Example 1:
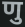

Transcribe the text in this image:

णु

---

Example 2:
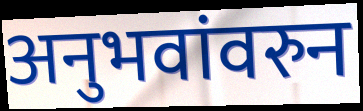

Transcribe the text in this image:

अनुभवांवरुन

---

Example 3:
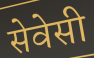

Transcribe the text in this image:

सेवेसी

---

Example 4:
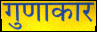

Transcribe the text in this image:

गुणाकार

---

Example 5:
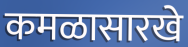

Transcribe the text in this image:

कमळासारखे